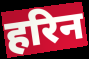
हरिन